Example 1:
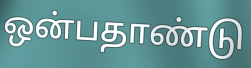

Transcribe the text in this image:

ஒன்பதாண்டு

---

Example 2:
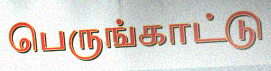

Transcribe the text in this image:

பெருங்காட்டு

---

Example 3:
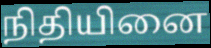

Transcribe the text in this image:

நிதியினை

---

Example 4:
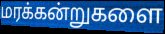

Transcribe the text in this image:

மரக்கன்றுகளை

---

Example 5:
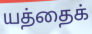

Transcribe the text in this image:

யத்தைக்